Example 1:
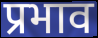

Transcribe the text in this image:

प्रभाव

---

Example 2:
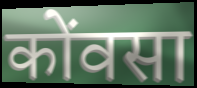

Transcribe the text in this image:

कोंवसा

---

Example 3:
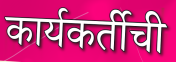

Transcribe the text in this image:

कार्यकर्तीची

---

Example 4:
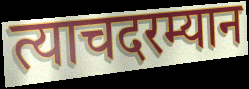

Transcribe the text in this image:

त्याचदरम्यान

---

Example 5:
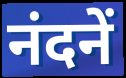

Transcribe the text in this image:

नंदनें